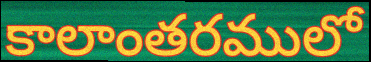
కాలాంతరములో